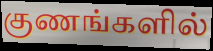
குணங்களில்